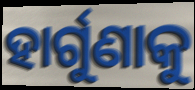
ହାର୍ଗୁଣାକୁ